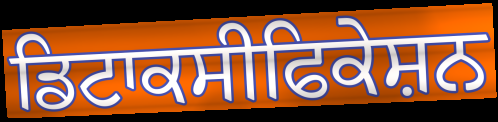
ਡਿਟਾਕਸੀਫਿਕੇਸ਼ਨ